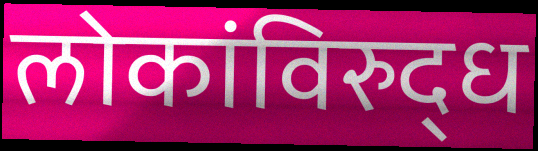
लोकांविरुद्ध